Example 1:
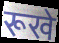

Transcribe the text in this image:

रूखे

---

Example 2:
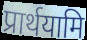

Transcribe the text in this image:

प्रार्थयामि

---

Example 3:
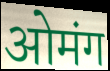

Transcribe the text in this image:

ओमंग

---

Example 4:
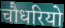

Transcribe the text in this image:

चौधरियो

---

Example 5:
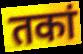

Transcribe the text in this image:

तकां